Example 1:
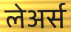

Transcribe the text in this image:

लेअर्स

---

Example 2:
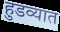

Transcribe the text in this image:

हुडव्यात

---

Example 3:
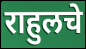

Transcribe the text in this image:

राहुलचे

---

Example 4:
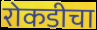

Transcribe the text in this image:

रोकडीचा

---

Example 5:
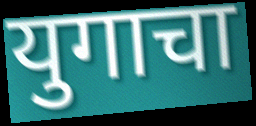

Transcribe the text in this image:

युगाचा